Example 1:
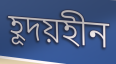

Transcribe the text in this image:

হূদয়হীন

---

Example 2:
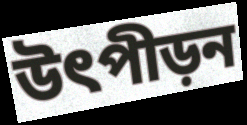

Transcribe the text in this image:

উৎপীড়ন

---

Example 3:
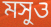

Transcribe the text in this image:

মসুও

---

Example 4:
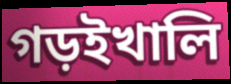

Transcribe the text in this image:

গড়ইখালি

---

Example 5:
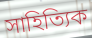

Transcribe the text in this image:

সাহিত্যিক